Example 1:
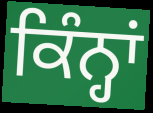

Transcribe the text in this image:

ਕਿੰਨ੍ਹਾਂ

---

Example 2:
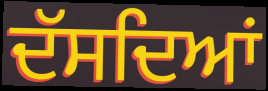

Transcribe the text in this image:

ਦੱਸਦਿਆਂ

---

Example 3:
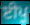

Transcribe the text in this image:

ਈਪੂ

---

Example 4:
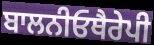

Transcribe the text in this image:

ਬਾਲਨੀਓਥੈਰੇਪੀ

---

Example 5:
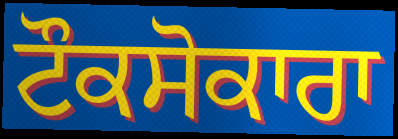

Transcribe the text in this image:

ਟੌਕਸੋਕਾਰਾ